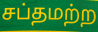
சப்தமற்ற